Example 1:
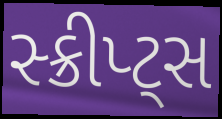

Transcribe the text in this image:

સ્ક્રીપ્ટ્સ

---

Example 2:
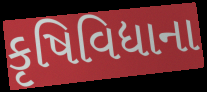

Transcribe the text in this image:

કૃષિવિદ્યાના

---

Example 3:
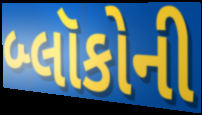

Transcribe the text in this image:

બ્લૉકોની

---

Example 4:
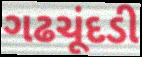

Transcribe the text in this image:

ગઢચૂંદડી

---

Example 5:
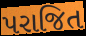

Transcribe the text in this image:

પરાજિત